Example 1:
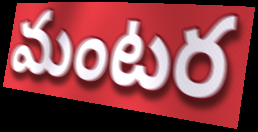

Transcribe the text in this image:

మంటర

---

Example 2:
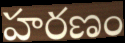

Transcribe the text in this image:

హరణం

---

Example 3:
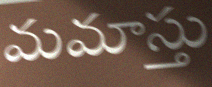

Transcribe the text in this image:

మమాస్తు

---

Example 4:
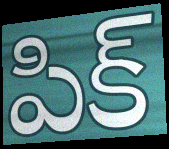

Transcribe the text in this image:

పిక్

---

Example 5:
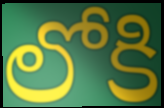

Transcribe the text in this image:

లోకి